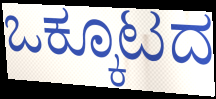
ಒಕ್ಕೂಟದ